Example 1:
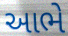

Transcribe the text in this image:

આભે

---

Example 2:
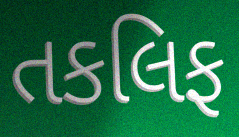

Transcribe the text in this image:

તકલિફ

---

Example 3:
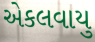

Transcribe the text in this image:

એકલવાયુ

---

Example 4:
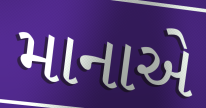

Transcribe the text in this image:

માનાએ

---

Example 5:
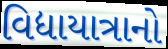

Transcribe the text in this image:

વિદ્યાયાત્રાનો